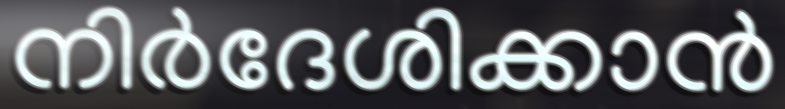
നിർദേശിക്കാൻ